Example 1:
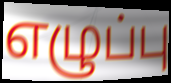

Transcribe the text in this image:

எழுப்பு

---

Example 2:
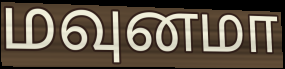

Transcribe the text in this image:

மவுனமா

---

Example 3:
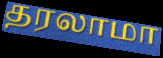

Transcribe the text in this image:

தரலாமா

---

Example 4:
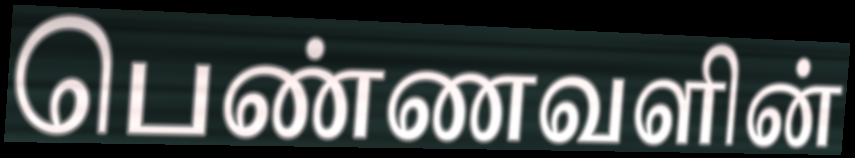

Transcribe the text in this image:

பெண்ணவளின்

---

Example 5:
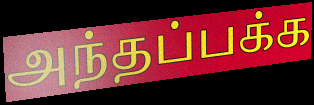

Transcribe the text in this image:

அந்தப்பக்க